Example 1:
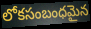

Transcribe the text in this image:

లోకసంబంధమైన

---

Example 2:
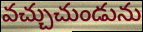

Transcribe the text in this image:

వచ్చుచుండును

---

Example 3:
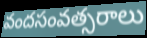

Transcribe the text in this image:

వందసంవత్సరాలు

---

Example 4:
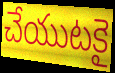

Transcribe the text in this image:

చేయుటకై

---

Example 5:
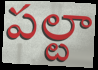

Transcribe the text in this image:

పల్టా